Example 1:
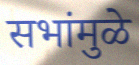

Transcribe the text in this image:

सभांमुळे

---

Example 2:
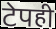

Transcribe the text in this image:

टेपही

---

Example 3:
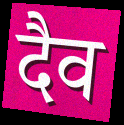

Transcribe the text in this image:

दैव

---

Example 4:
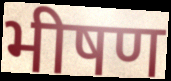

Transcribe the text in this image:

भीषण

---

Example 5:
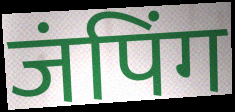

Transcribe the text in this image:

जंपिंग